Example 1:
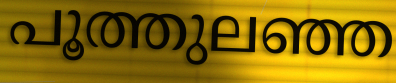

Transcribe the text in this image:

പൂത്തുലഞ്ഞ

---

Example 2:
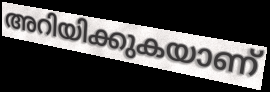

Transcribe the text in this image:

അറിയിക്കുകയാണ്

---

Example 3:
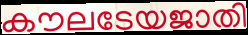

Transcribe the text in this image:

കൗലടേയജാതി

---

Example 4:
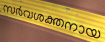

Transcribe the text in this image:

സർവശക്തനായ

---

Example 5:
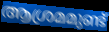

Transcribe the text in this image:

ആശ്രമമുണ്ട്